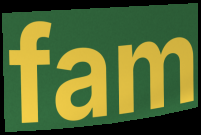
fam